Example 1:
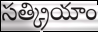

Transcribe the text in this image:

సత్క్రియాం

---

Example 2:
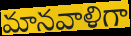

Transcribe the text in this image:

మానవాళిగా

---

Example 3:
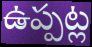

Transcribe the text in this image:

ఉప్పట్ల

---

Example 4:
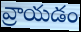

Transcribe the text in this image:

వ్రాయడం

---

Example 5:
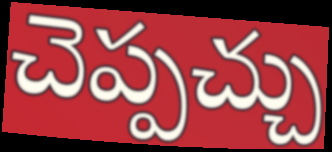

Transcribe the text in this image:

చెప్పచ్చు